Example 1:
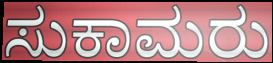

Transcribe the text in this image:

ಸುಕಾಮರು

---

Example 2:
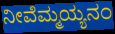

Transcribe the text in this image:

ನೀವೆಮ್ಮಯ್ಯನಂ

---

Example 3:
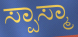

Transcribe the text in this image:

ಸ್ಪಾಸ್ಮಾ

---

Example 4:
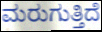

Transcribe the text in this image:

ಮರುಗುತ್ತಿದೆ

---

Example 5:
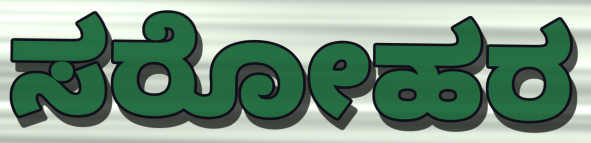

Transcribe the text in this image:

ಸರೋಹರ